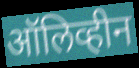
ऑलिव्हीन